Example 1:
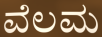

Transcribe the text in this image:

ವೆಲಮ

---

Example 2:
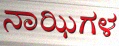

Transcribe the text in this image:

ನಾಝಿಗಳ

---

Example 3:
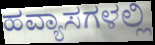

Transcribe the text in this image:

ಹವ್ಯಾಸಗಳಲ್ಲಿ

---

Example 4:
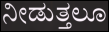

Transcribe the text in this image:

ನೀಡುತ್ತಲೂ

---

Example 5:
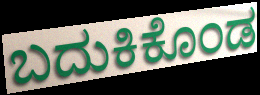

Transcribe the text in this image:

ಬದುಕಿಕೊಂಡ